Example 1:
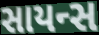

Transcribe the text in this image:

સાયન્સ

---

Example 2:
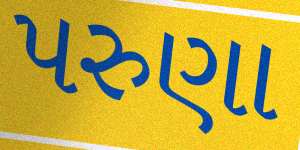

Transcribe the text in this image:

પરુણા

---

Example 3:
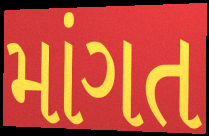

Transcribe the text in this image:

માંગત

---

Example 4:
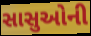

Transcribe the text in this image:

સાસુઓની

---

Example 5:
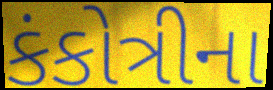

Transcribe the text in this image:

કંકોત્રીના